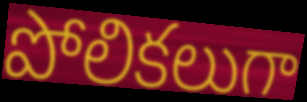
పోలికలుగా